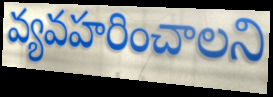
వ్యవహరించాలని